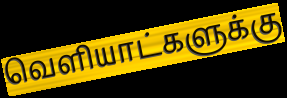
வெளியாட்களுக்கு